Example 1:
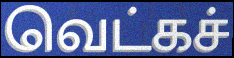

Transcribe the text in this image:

வெட்கச்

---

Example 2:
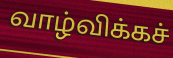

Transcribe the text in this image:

வாழ்விக்கச்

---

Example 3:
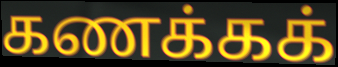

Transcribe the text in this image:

கணக்கக்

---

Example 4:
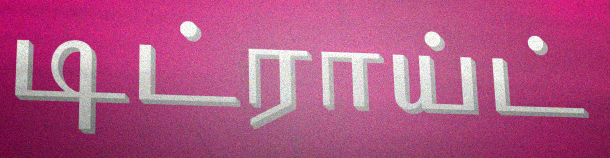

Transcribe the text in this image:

டிட்ராய்ட்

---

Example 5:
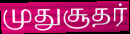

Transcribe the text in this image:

முதுசூதர்